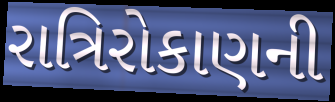
રાત્રિરોકાણની